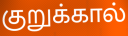
குறுக்கால்